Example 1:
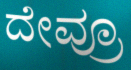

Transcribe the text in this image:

ದೇವ್ರೂ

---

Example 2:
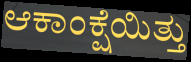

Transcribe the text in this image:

ಆಕಾಂಕ್ಷೆಯಿತ್ತು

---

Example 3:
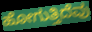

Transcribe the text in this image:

ಹೋಗುತ್ತಿದೆವು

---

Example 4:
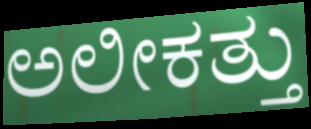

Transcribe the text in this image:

ಅಲೀಕತ್ತು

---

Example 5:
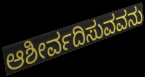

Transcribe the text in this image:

ಆಶೀರ್ವದಿಸುವವನು